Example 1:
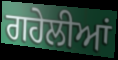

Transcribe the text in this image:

ਗਹੇਲੀਆਂ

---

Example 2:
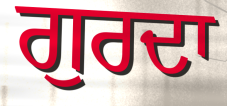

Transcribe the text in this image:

ਗੁਰਦਾ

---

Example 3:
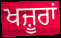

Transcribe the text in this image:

ਖਜ਼ੂਰਾਂ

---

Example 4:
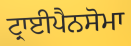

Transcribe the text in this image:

ਟ੍ਰਾਈਪੈਨਸੋਮਾ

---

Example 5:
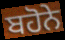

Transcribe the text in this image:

ਬਹੋਨੇ